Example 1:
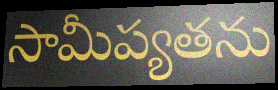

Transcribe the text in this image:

సామీప్యతను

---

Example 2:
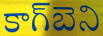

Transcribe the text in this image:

కాగ్‌బెని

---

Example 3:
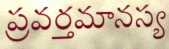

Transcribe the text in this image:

ప్రవర్తమానస్య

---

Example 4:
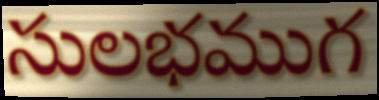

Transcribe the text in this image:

సులభముగ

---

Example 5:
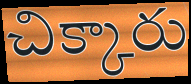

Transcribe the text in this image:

చిక్కారు